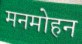
मनमोहन